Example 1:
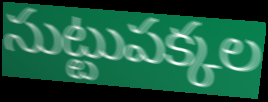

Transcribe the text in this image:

సుట్టుపక్కల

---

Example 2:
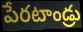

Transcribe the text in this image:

పేరటాండ్రు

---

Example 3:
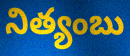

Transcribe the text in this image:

నిత్యంబు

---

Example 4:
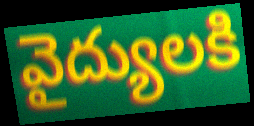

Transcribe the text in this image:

వైద్యులకి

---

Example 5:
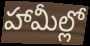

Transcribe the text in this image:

హామీల్లో